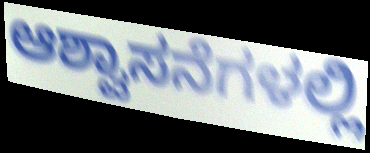
ಆಶ್ವಾಸನೆಗಳಲ್ಲಿ